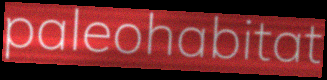
paleohabitat